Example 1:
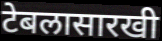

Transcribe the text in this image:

टेबलासारखी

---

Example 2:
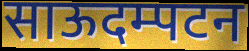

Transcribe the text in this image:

साऊदम्पटन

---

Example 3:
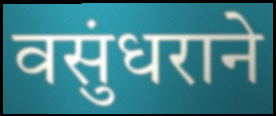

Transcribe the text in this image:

वसुंधराने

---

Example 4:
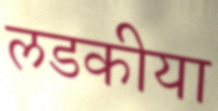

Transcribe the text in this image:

लडकीया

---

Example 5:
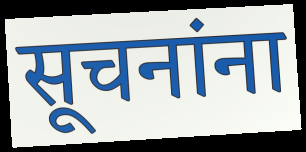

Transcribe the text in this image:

सूचनांना